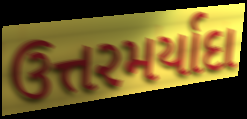
ઉત્તરમર્યાદા